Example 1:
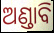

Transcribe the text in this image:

ଅଣ୍ଡାବି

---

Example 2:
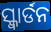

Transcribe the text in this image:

ସ୍କ୍ବାର୍ଡନ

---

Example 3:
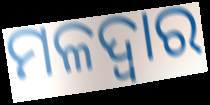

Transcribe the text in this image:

ମଳଦ୍ୱାର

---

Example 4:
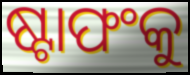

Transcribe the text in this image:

ଷ୍ଟାଫଂକୁ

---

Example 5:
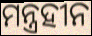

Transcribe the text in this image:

ମନ୍ତ୍ରହୀନ